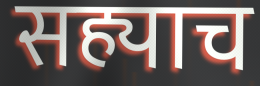
सह्याच